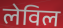
लेविल